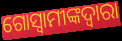
ଗୋସ୍ୱାମୀଙ୍କଦ୍ୱାରା